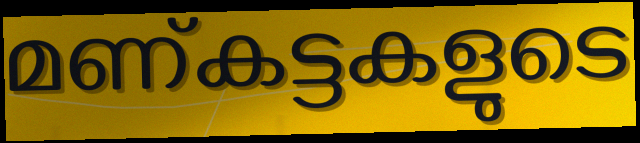
മണ്കട്ടകളുടെ